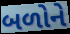
બળોને